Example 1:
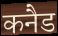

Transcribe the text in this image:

कनैड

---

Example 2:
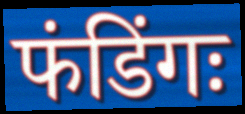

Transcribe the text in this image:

फंडिंगः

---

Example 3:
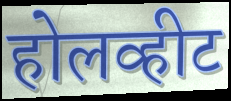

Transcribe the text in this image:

होलव्हीट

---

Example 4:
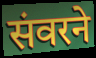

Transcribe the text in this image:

संवरने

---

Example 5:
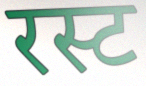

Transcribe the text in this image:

रस्ट